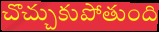
చొచ్చుకుపోతుంది